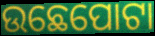
ଉଛେପୋଟା